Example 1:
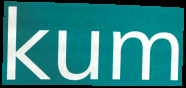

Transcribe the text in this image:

kum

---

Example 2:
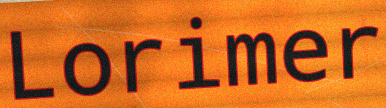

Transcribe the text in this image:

Lorimer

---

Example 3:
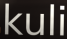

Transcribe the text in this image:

kuli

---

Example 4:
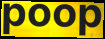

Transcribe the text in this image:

poop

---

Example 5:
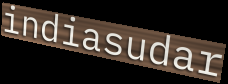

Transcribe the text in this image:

indiasudar